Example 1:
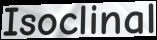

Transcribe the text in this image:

Isoclinal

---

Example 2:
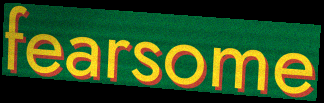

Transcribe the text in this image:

fearsome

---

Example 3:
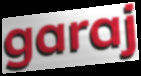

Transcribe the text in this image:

garaj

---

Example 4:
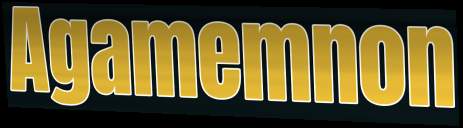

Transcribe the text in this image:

Agamemnon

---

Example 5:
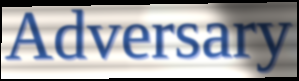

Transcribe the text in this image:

Adversary